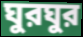
ঘুরঘুর